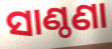
ସାଣ୍ଠଣା